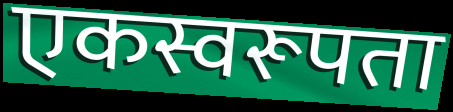
एकस्वरूपता